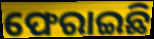
ଫେରାଇଛି